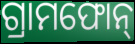
ଗ୍ରାମଫୋନ୍